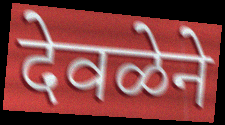
देवळेने